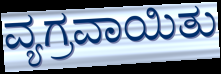
ವ್ಯಗ್ರವಾಯಿತು